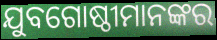
ଯୁବଗୋଷ୍ଠୀମାନଙ୍କର